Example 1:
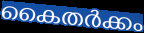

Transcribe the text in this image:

കൈതർക്കം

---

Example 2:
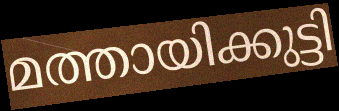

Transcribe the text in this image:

മത്തായിക്കുട്ടി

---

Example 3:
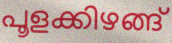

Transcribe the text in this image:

പൂളക്കിഴങ്ങ്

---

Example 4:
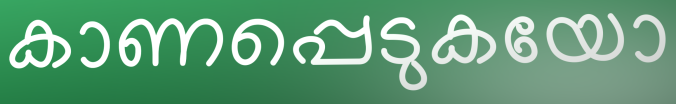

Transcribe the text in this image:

കാണപ്പെടുകയോ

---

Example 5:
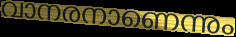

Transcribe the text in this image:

വാനരനാണെന്നും